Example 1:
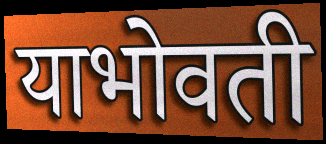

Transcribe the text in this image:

याभोवती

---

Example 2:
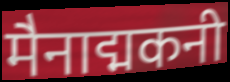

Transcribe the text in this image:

मैनाद्मकनी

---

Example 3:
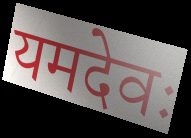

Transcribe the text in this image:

यमदेवः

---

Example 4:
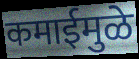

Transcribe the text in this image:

कमाईमुळे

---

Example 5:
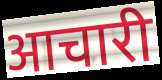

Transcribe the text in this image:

आचारी